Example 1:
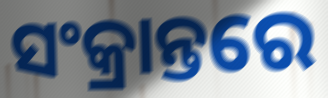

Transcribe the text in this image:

ସଂକ୍ରାନ୍ତରେ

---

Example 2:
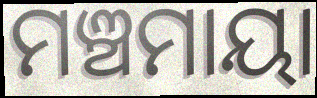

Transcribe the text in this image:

ମଞ୍ଚମାୟା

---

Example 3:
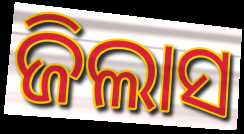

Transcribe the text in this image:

ଜିଲାସ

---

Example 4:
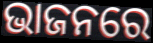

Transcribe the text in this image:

ଭାଜନରେ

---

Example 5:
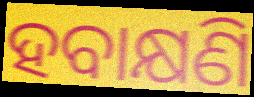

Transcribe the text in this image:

ହବାକ୍ଷଣି